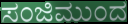
ಸಂಜಿಮುಂದ